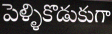
పెళ్ళికొడుకుగా